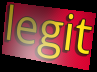
legit